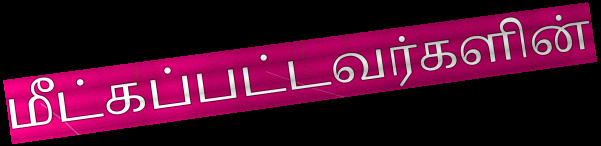
மீட்கப்பட்டவர்களின்